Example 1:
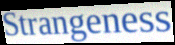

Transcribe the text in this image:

Strangeness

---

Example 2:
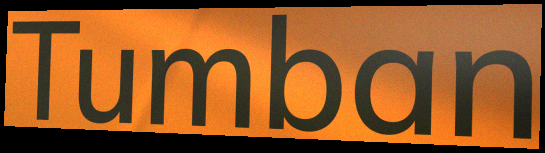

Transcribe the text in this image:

Tumban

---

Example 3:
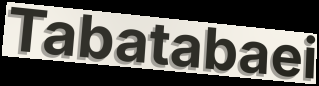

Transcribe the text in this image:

Tabatabaei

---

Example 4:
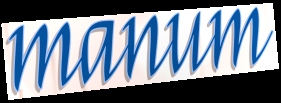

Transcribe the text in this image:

manum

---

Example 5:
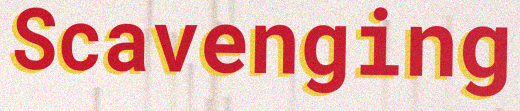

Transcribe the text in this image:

Scavenging